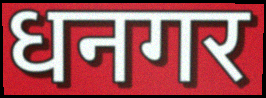
धनगर